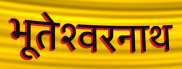
भूतेश्वरनाथ